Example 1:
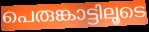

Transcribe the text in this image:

പെരുങ്കാട്ടിലൂടെ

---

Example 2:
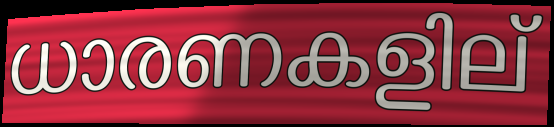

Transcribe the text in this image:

ധാരണകളില്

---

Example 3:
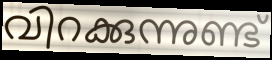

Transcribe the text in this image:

വിറക്കുന്നുണ്ട്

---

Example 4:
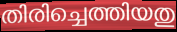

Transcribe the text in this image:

തിരിച്ചെത്തിയതു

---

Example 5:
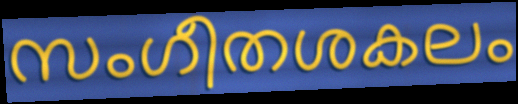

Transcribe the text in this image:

സംഗീതശകലം